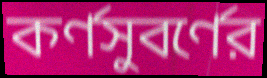
কর্ণসুবর্ণের